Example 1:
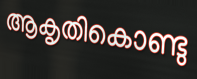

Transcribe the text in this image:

ആകൃതികൊണ്ടു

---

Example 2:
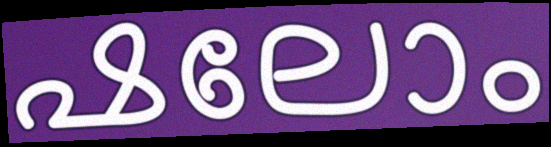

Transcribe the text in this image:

ഷലോം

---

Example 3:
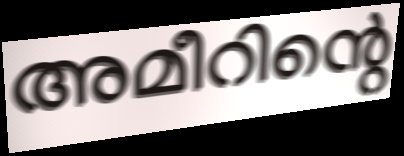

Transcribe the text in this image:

അമീറിന്റെ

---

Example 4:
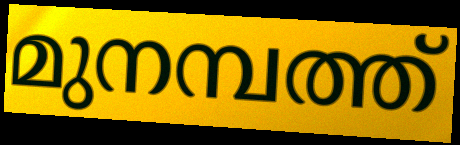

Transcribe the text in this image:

മുനമ്പത്ത്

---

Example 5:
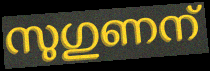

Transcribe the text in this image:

സുഗുണന്